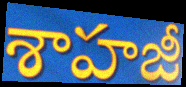
శాహజీ